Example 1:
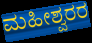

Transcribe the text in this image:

ಮಹೀಶ್ವರರ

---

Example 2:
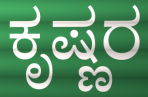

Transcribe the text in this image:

ಕೃಷ್ಣರ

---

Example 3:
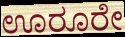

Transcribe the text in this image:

ಊರೂರೇ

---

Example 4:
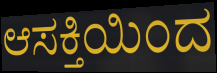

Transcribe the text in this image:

ಆಸಕ್ತಿಯಿಂದ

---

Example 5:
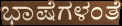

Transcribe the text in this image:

ಭಾಷೆಗಳಂತೆ